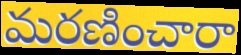
మరణించారా